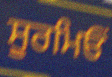
ਸੂਰਮਿਓਂ